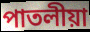
পাতলীয়া